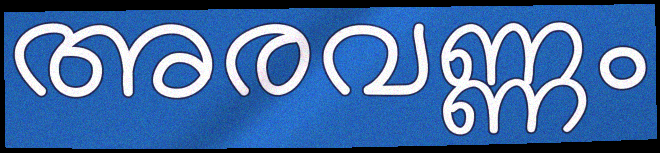
അരവണ്ണം